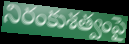
నిరంకుశత్వంపై